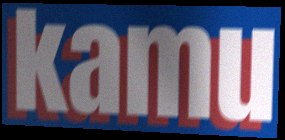
kamu